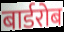
बार्डरोब